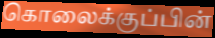
கொலைக்குப்பின்